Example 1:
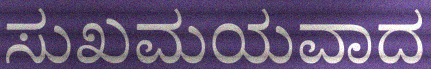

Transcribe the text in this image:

ಸುಖಮಯವಾದ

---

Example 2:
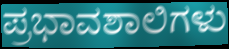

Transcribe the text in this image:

ಪ್ರಭಾವಶಾಲಿಗಳು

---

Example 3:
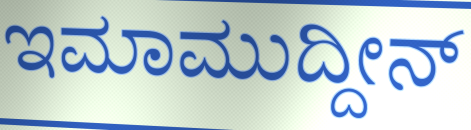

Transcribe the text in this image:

ಇಮಾಮುದ್ದೀನ್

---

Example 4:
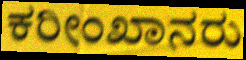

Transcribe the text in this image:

ಕರೀಂಖಾನರು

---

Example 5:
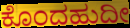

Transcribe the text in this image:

ಕೊಂದಹುದೀ